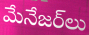
మేనేజర్‌లు